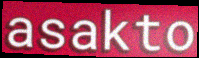
asakto